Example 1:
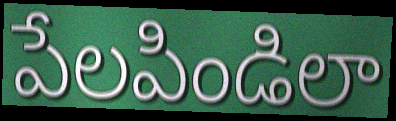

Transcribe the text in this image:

పేలపిండిలా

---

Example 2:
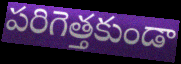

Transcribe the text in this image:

పరిగెత్తకుండా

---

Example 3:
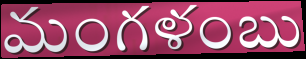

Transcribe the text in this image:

మంగళంబు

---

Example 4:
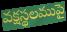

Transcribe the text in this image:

వక్షస్థలముపై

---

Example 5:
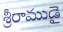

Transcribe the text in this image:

శ్రీరాముడై